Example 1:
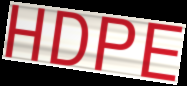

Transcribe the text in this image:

HDPE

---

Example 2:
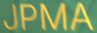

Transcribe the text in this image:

JPMA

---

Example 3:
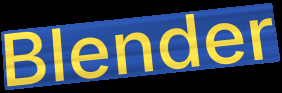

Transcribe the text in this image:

Blender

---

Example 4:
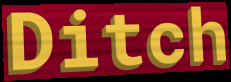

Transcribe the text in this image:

Ditch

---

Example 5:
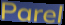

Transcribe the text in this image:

Parel